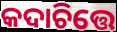
କଦାଚିତ୍ତେ